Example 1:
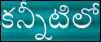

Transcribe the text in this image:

కన్నీటిలో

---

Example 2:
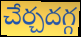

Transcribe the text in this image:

చేర్చదగ్గ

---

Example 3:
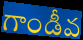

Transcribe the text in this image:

గాండీవ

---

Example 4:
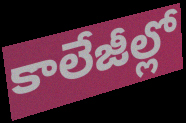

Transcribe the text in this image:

కాలేజీల్లో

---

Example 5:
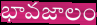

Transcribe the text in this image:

భావజాలం